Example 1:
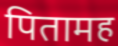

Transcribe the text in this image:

पितामह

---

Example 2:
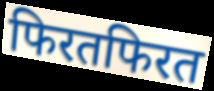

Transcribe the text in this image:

फिरतफिरत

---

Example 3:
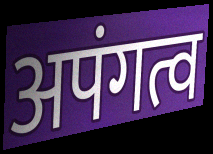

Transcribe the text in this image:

अपंगत्व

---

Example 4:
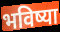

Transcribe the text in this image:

भविष्या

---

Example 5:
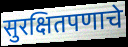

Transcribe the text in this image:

सुरक्षितपणाचे